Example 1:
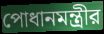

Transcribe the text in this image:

পোধানমন্ত্রীর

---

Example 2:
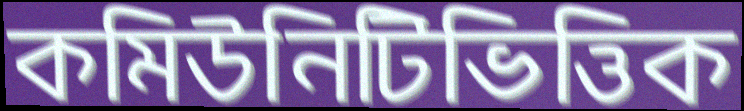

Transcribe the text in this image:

কমিউনিটিভিত্তিক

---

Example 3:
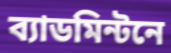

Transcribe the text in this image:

ব্যাডমিন্টনে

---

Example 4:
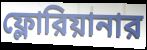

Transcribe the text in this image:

ফ্লোরিয়ানার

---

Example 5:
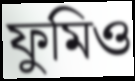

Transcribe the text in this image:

ফুমিও